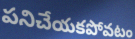
పనిచేయకపోవటం